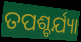
ତପଶ୍ଚର୍ଯ୍ୟା